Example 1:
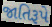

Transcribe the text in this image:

જાતિરૂપે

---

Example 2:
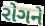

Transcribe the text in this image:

રોગને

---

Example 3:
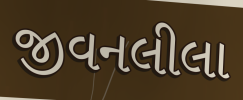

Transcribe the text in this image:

જીવનલીલા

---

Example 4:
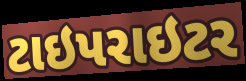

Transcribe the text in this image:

ટાઇપરાઇટર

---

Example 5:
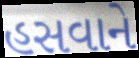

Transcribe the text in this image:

હસવાને